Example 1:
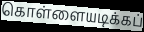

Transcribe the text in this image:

கொள்ளையடிக்கப்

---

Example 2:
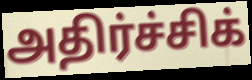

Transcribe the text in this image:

அதிர்ச்சிக்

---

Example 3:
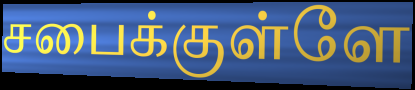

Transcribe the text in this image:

சபைக்குள்ளே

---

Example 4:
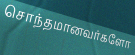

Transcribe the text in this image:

சொந்தமானவர்களோ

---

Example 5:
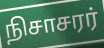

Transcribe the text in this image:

நிசாசரர்